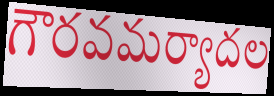
గౌరవమర్యాదల